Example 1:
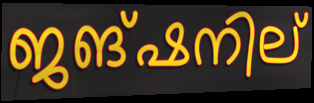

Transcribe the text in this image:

ജങ്ഷനില്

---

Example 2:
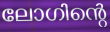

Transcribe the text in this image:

ലോഗിന്റെ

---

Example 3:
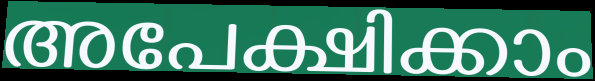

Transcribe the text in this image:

അപേക്ഷിക്കാം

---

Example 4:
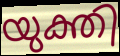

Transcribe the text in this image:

യുക്തി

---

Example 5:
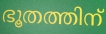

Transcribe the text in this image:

ഭൂതത്തിന്